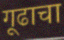
गूढाचा